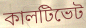
কালটিভেট